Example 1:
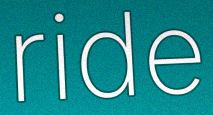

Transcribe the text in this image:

ride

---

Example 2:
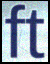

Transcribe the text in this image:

ft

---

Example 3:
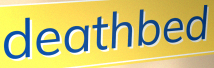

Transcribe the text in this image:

deathbed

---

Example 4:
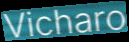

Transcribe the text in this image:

Vicharo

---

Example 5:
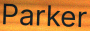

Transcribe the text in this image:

Parker